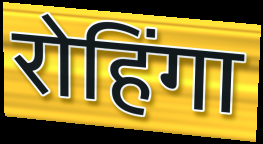
रोहिंगा